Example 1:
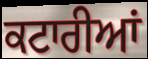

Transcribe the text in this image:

ਕਟਾਰੀਆਂ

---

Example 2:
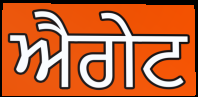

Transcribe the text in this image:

ਐਗੇਟ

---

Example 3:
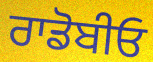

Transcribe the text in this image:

ਰਾਡੋਬੀਓ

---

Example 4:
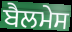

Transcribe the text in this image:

ਬੈਲਮੇਸ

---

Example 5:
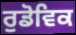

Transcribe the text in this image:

ਰੁਡੋਵਿਕ